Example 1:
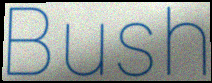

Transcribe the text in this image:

Bush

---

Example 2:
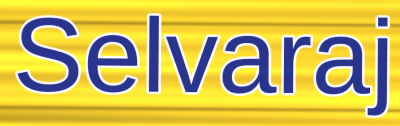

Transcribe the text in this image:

Selvaraj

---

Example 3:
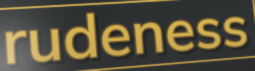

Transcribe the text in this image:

rudeness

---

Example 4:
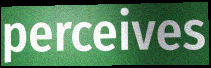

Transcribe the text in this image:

perceives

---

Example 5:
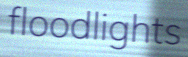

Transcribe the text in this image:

floodlights